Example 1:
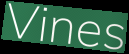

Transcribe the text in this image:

Vines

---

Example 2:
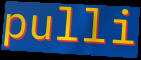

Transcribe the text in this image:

pulli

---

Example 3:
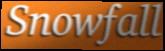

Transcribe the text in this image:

Snowfall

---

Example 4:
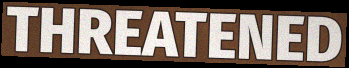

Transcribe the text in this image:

THREATENED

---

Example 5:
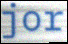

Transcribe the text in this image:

jor